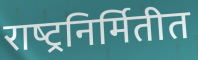
राष्ट्रनिर्मितीत